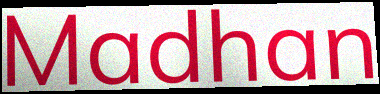
Madhan